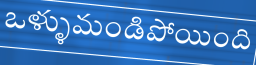
ఒళ్ళుమండిపోయింది